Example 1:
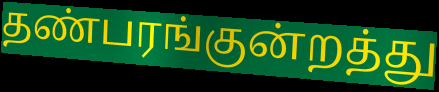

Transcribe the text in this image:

தண்பரங்குன்றத்து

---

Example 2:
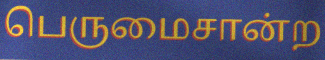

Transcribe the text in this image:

பெருமைசான்ற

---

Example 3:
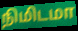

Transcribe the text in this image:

நிமிடமா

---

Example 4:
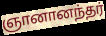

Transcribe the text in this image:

ஞானானந்தர்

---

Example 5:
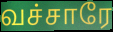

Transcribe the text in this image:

வச்சாரே